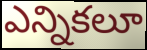
ఎన్నికలూ